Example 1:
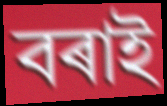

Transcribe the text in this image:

বৰাই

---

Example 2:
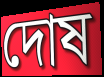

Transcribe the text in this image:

দোষ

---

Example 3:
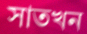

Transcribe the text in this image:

সাতখন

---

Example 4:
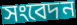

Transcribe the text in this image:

সংবেদন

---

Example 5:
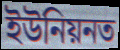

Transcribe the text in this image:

ইউনিয়নত